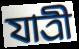
যাত্ৰী